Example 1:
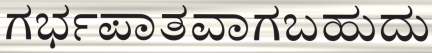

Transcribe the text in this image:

ಗರ್ಭಪಾತವಾಗಬಹುದು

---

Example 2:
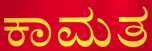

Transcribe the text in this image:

ಕಾಮತ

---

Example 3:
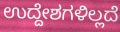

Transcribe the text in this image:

ಉದ್ದೇಶಗಳಿಲ್ಲದೆ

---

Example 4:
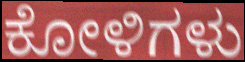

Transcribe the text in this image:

ಕೋಳಿಗಳು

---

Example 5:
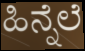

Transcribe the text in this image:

ಹಿನ್ನೆಲೆ